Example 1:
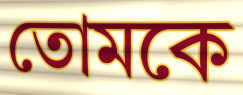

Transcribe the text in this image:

তোমকে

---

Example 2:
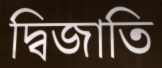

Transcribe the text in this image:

দ্বিজাতি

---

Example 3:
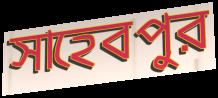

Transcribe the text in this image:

সাহেবপুর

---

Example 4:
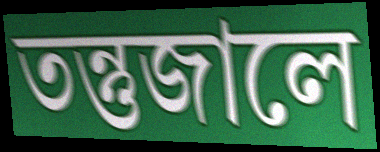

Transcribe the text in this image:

তন্তুজালে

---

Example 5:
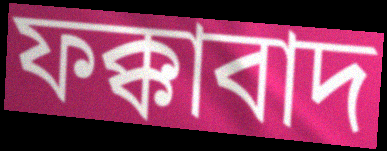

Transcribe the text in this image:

ফক্কাবাদ